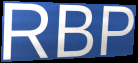
RBP